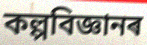
কল্পবিজ্ঞানৰ